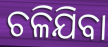
ଚଳିଯିବା